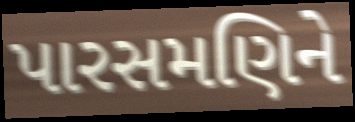
પારસમણિને